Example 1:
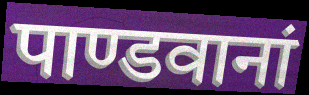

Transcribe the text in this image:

पाण्डवानां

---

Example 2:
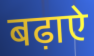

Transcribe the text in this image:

बढ़ाऐ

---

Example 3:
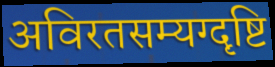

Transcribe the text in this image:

अविरतसम्यग्दृष्टि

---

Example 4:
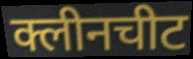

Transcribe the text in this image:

क्लीनचीट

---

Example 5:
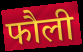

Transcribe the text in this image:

फौली